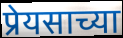
प्रेयसाच्या